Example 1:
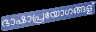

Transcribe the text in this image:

ഭാഷാപ്രയോഗങ്ങള്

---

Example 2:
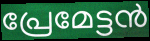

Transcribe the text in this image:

പ്രേമേട്ടൻ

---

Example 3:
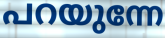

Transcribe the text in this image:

പറയുന്നേ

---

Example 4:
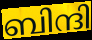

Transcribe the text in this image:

ബിന്ദി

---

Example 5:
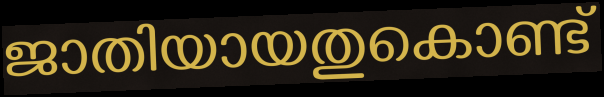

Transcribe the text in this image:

ജാതിയായതുകൊണ്ട്